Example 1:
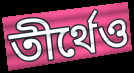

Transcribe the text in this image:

তীর্থেও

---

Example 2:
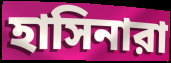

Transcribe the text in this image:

হাসিনারা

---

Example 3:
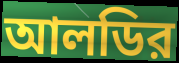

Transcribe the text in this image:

আলডির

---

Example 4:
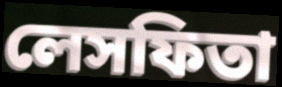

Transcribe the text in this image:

লেসফিতা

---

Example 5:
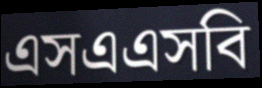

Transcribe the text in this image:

এসএএসবি